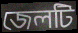
জেলটি